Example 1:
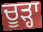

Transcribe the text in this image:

ਚੂੜ੍ਹਾ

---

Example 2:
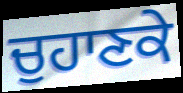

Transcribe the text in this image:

ਚੁਹਾਣਕੇ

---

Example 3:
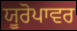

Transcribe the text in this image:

ਯੂਰੋਪਾਵਰ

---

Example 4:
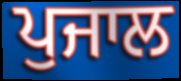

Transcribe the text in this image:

ਪੁਜਾਲ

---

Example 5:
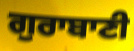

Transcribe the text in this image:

ਗੁਰਾਬਾਣੀ